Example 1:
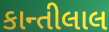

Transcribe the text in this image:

કાન્તીલાલ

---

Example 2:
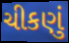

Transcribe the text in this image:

ચીકણું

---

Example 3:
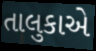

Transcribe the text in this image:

તાલુકાએ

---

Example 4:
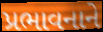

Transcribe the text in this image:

પ્રભાવનાને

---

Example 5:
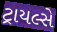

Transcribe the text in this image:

ટ્રાયલ્સે